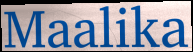
Maalika